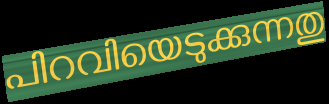
പിറവിയെടുക്കുന്നതു